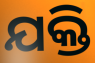
ଯକ୍ତି